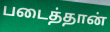
படைத்தான்